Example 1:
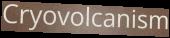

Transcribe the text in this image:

Cryovolcanism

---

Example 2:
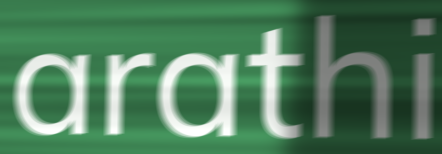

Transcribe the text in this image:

arathi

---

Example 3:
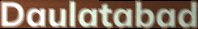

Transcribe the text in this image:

Daulatabad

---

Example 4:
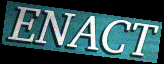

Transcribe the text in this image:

ENACT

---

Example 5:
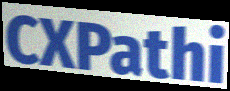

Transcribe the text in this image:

CXPathi